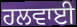
ਹਲਵਾਈ